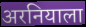
अरनियाला